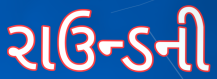
રાઉન્ડની